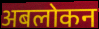
अबलोकन